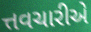
ત્તવચારીએ